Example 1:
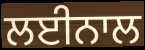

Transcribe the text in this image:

ਲਈਨਾਲ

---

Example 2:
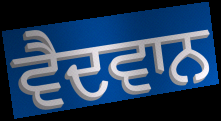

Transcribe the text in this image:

ਵੈਦਵਾਨ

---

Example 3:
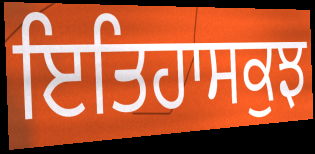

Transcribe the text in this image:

ਇਤਿਹਾਸਕੁਝ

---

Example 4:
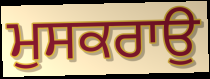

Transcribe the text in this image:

ਮੁਸਕਰਾਉ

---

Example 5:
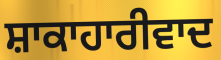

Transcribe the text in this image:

ਸ਼ਾਕਾਹਾਰੀਵਾਦ